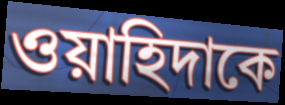
ওয়াহিদাকে